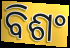
ବିଶଂ